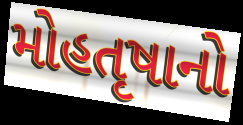
મોહતૃષાનો